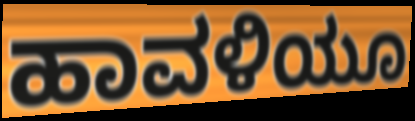
ಹಾವಳಿಯೂ